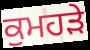
ਕੁਮਹੜੇ